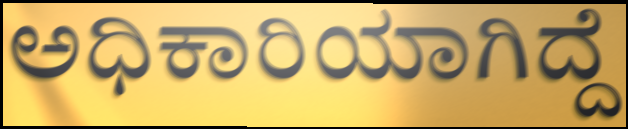
ಅಧಿಕಾರಿಯಾಗಿದ್ದೆ